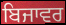
ਬਿਜਾਵਰ